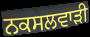
ਨਕਸਲਵਾੜੀ